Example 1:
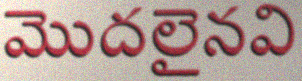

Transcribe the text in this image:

మొదలైనవి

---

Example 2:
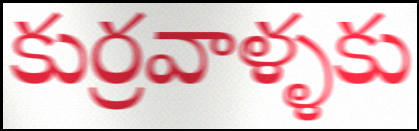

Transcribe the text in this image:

కుర్రవాళ్ళకు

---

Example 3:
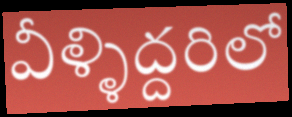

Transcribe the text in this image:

వీళ్ళిద్దరిలో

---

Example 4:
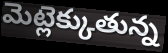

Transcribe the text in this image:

మెట్లెక్కుతున్న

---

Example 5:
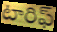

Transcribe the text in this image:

టారిఫ్